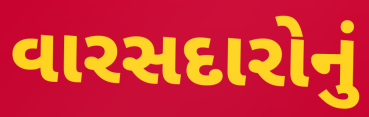
વારસદારોનું